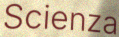
Scienza